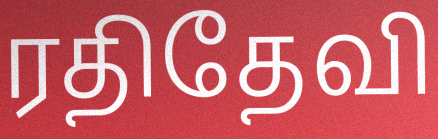
ரதிதேவி